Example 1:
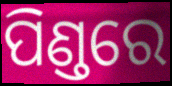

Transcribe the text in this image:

ପିଣ୍ଡରେ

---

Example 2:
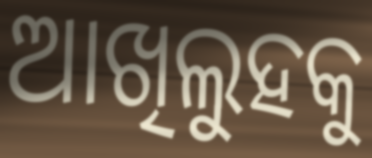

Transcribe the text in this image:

ଆଖିଲୁହକୁ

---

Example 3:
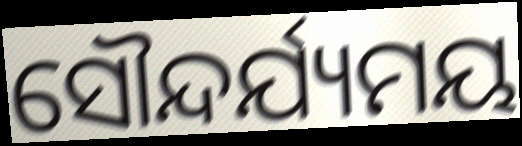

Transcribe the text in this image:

ସୌନ୍ଦର୍ଯ୍ୟମୟ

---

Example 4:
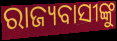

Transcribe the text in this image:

ରାଜ୍ୟବାସୀଙ୍କୁ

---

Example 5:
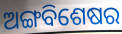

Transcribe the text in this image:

ଅଙ୍ଗବିଶେଷର